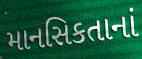
માનસિકતાનાં